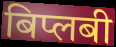
बिप्लबी